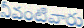
నీవంటివారు